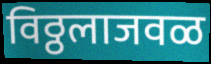
विठ्ठलाजवळ